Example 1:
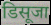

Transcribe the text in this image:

डिसूजा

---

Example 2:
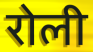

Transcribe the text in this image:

रोली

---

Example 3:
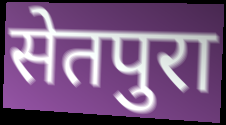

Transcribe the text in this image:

सेतपुरा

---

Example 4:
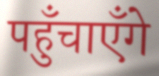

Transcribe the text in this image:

पहुँचाएँगे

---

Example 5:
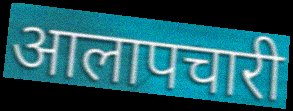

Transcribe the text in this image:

आलापचारी